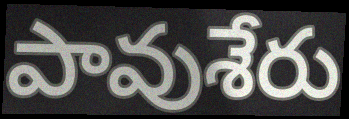
పావుశేరు